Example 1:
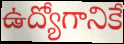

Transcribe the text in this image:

ఉద్యోగానికే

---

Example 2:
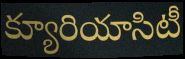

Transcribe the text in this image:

క్యూరియాసిటీ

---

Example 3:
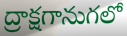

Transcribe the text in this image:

ద్రాక్షగానుగలో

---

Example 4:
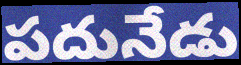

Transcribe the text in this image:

పదునేడు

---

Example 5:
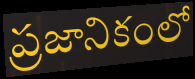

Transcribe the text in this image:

ప్రజానికంలో